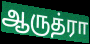
ஆருத்ரா